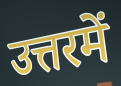
उत्तरमें